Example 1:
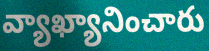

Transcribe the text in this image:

వ్యాఖ్యానించారు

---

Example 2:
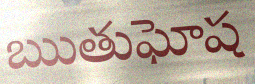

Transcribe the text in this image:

ఋతుఘోష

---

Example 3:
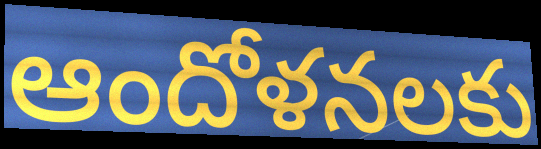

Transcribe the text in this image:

ఆందోళనలకు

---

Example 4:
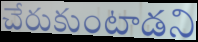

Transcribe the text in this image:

చేరుకుంటాడని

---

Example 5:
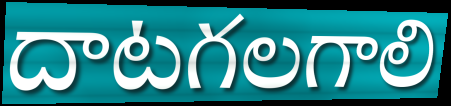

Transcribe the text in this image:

దాటగలగాలి